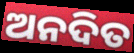
ଅନଦିତ